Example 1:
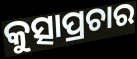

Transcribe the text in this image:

କୁତ୍ସାପ୍ରଚାର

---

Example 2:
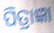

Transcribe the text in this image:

ପିତ୍ରାଜ୍ଞା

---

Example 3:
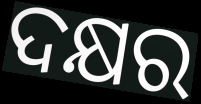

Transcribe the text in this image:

ଦକ୍ଷର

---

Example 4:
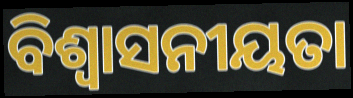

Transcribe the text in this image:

ବିଶ୍ୱାସନୀୟତା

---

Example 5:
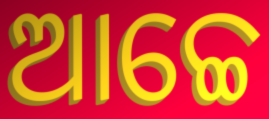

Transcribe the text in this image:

ଆଚ୍ଚେ